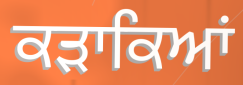
ਕੜਾਕਿਆਂ